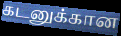
கடனுக்கான